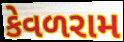
કેવળરામ